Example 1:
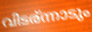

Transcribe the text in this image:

വിടര്ന്നാടും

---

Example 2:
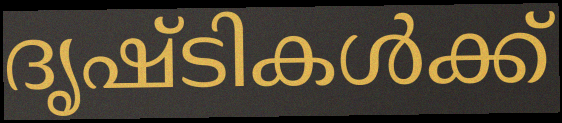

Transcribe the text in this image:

ദൃഷ്ടികൾക്ക്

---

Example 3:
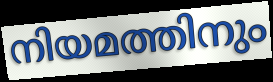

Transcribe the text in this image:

നിയമത്തിനും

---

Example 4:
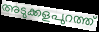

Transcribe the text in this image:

അടുക്കളപുറത്ത്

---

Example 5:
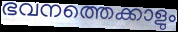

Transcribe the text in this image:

ഭവനത്തെക്കാളും